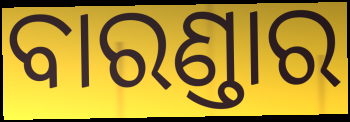
ବାରଣ୍ଡାର